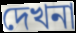
দেখনা